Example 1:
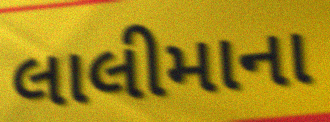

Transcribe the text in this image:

લાલીમાના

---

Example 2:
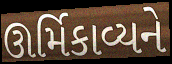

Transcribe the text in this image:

ઊર્મિકાવ્યને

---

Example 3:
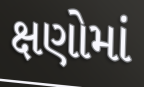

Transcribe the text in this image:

ક્ષણોમાં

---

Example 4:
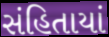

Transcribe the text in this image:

સંહિતાયાં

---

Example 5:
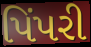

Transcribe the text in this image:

પિંપરી